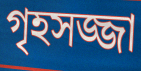
গৃহসজ্জা